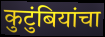
कुटुंबियांचा